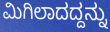
ಮಿಗಿಲಾದದ್ದನ್ನು